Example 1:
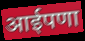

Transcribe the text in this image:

आईपणा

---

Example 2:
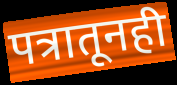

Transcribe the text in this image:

पत्रातूनही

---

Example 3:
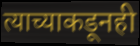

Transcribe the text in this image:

त्याच्याकडूनही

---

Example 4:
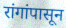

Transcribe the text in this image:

रांगांपासून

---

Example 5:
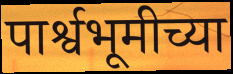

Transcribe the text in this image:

पार्श्वभूमीच्या